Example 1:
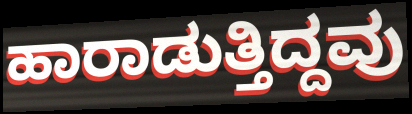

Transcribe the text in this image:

ಹಾರಾಡುತ್ತಿದ್ದವು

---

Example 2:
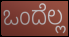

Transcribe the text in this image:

ಒಂದೆಲ್ಲ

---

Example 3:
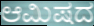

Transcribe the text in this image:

ಆಮಿಷದ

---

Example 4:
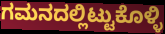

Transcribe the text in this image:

ಗಮನದಲ್ಲಿಟ್ಟುಕೊಳ್ಳಿ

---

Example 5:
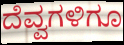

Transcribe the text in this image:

ದೆವ್ವಗಳಿಗೂ